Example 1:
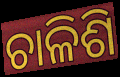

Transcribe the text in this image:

ଚାଳିଶି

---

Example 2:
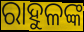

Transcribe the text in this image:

ରାହୁଳଙ୍କ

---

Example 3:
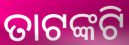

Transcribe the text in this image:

ତାଟଙ୍କଟି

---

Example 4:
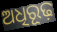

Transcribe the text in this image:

ଅଧିରୂଢ଼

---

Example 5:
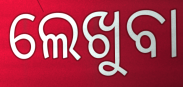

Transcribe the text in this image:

ଲେଖୁବା